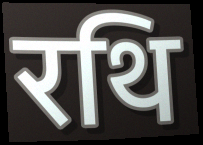
रथि